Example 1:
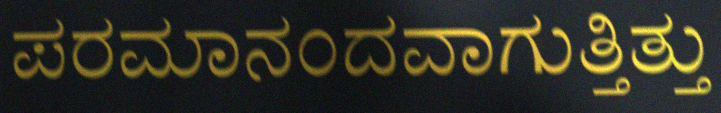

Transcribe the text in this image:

ಪರಮಾನಂದವಾಗುತ್ತಿತ್ತು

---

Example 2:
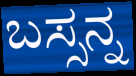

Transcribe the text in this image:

ಬಸ್ಸನ್ನ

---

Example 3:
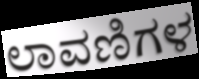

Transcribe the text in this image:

ಲಾವಣಿಗಳ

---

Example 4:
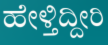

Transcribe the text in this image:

ಹೇಳ್ತಿದ್ದೀರಿ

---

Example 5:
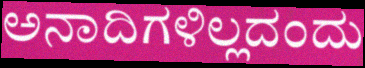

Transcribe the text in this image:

ಅನಾದಿಗಳಿಲ್ಲದಂದು